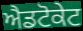
ਐਡਟੋਕੇਟ